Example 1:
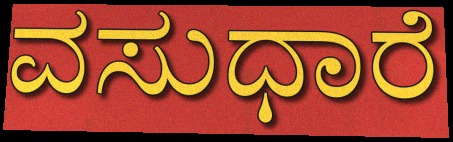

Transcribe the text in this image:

ವಸುಧಾರೆ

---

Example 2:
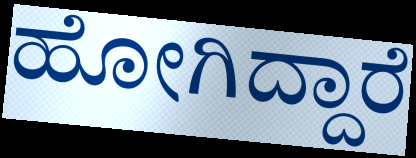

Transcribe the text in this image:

ಹೋಗಿದ್ದಾರೆ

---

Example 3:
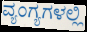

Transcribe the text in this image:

ವ್ಯಂಗ್ಯಗಳಲ್ಲಿ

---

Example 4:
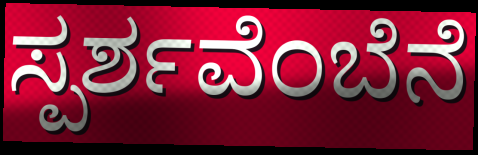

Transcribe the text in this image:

ಸ್ಪರ್ಶವೆಂಬೆನೆ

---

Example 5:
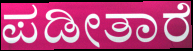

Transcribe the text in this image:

ಪಡೀತಾರೆ